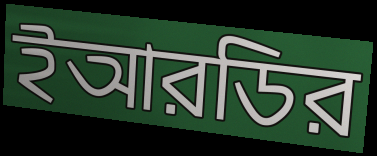
ইআরডির